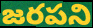
జరపని